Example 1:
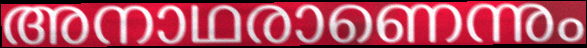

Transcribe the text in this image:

അനാഥരാണെന്നും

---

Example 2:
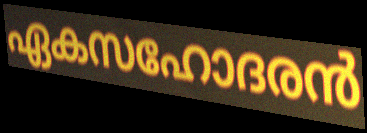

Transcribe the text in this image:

ഏകസഹോദരൻ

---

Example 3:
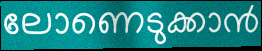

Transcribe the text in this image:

ലോണെടുക്കാൻ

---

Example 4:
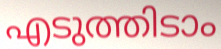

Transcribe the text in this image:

എടുത്തിടാം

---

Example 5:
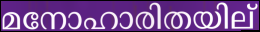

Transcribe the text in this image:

മനോഹാരിതയില്